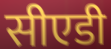
सीएडी